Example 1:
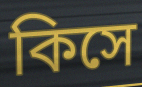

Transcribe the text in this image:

কিসে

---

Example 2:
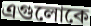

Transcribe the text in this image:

এগুলোকে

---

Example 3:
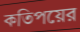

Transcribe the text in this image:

কতিপয়ের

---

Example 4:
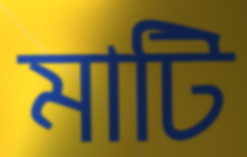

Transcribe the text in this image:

মাটি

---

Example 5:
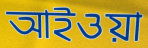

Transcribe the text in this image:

আইওয়া